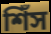
শিঁস